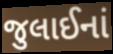
જુલાઈનાં